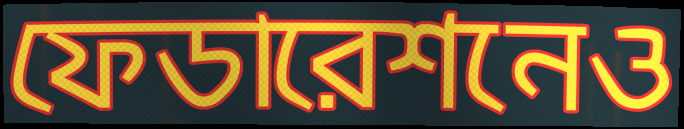
ফেডারেশনেও